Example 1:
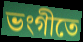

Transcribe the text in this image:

ভংগীতে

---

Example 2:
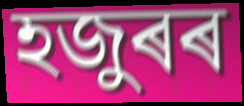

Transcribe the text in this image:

হজুৰৰ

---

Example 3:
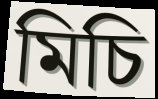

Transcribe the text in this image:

মিচি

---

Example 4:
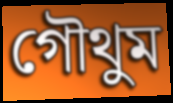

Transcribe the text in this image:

গৌথুম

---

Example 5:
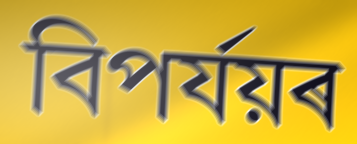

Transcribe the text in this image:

বিপৰ্যয়ৰ